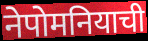
नेपोमनियाची